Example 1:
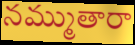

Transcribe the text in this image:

నమ్ముతారా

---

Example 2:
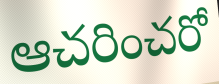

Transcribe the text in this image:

ఆచరించరో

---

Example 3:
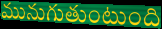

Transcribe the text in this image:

మునుగుతుంటుంది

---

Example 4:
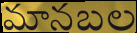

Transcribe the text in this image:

మానబల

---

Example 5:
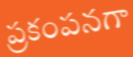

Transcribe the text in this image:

ప్రకంపనగా